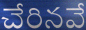
చేరినవే